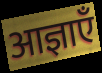
आज्ञाएँ